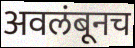
अवलंबूनच